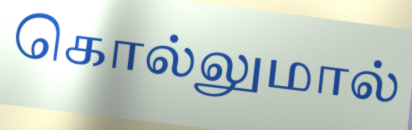
கொல்லுமால்